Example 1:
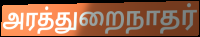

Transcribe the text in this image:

அரத்துறைநாதர்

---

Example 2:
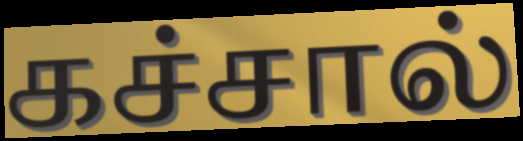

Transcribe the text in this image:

கச்சால்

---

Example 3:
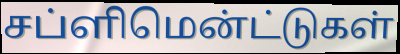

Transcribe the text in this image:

சப்ளிமென்ட்டுகள்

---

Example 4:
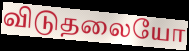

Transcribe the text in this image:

விடுதலையோ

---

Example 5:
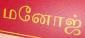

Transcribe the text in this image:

மனோஜ்